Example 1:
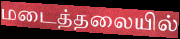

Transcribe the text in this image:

மடைத்தலையில்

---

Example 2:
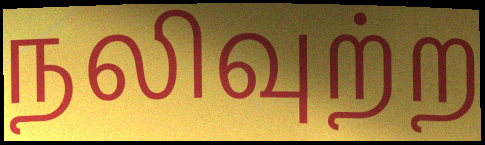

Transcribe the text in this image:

நலிவுற்ற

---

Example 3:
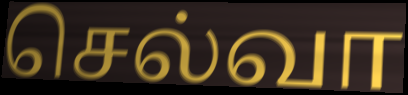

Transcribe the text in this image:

செல்வா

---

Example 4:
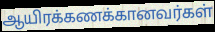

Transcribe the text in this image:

ஆயிரக்கணக்கானவர்கள்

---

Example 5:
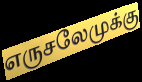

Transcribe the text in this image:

எருசலேமுக்கு